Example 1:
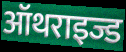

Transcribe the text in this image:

ऑथराइज्ड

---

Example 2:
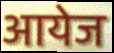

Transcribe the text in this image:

आयेज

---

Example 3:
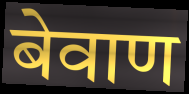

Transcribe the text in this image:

बेवाण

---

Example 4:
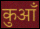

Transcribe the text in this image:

कुआँ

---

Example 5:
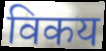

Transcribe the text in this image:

विकय